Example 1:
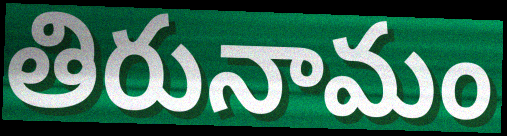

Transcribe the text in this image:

తిరునామం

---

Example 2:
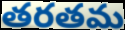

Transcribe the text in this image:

తరతమ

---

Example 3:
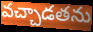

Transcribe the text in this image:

వచ్చాడతను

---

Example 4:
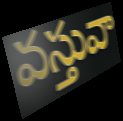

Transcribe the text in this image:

వస్తువా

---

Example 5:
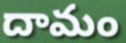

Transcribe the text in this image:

దామం